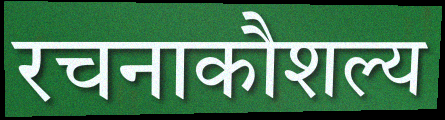
रचनाकौशल्य